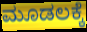
ಮೂಡಲಕ್ಕೆ